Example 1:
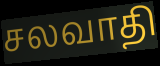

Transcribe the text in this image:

சலவாதி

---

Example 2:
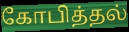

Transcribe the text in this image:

கோபித்தல்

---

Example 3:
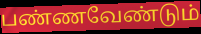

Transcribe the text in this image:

பண்ணவேண்டும்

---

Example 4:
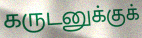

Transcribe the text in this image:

கருடனுக்குக்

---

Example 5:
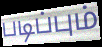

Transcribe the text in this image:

படிப்பும்